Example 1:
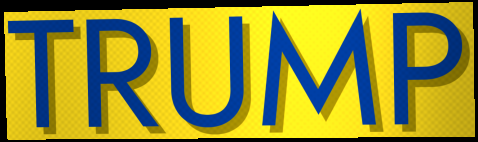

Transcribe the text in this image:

TRUMP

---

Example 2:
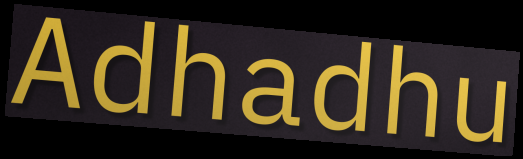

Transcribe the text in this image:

Adhadhu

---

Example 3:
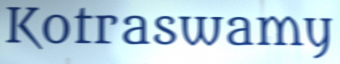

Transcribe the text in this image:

Kotraswamy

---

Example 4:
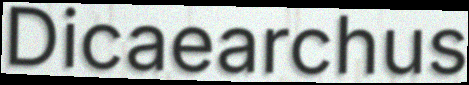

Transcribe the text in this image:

Dicaearchus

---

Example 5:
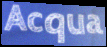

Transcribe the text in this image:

Acqua